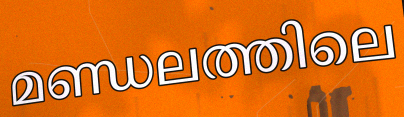
മണ്ഡലത്തിലെ